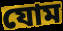
যোম